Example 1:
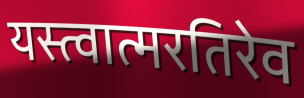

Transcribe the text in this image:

यस्त्वात्मरतिरेव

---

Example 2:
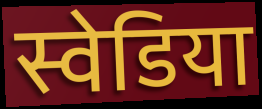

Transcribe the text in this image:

स्वेडिया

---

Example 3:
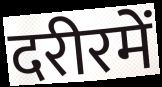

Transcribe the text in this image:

दरीरमें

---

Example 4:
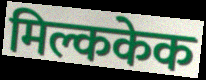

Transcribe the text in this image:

मिल्ककेक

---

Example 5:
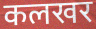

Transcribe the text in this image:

कलखर